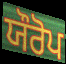
ਯੌਰੋਪ